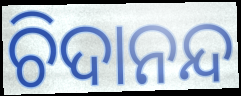
ଚିଦାନନ୍ଦ